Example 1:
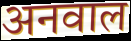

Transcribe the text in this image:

अनवाल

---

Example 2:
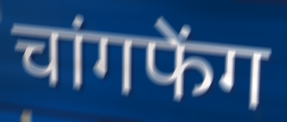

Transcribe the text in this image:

चांगफेंग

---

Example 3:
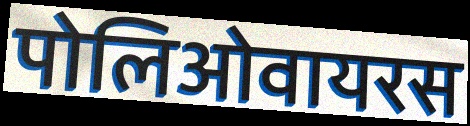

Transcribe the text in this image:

पोलिओवायरस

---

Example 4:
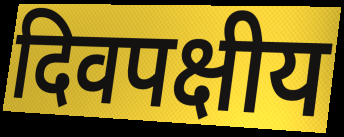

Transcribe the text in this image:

दिवपक्षीय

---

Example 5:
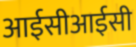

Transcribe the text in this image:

आईसीआईसी